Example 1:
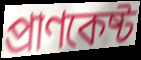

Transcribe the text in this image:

প্রাণকেষ্ট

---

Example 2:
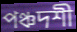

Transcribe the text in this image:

পঞ্চদশী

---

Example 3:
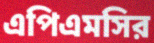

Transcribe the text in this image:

এপিএমসির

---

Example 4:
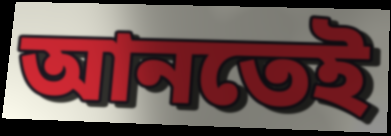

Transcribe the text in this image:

আনতেই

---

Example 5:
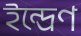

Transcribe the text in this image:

ইন্দ্রেণ